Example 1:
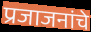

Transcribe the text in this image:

प्रजाजनांचे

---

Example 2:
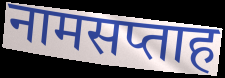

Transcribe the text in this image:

नामसप्ताह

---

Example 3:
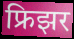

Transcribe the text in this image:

फ्रिझर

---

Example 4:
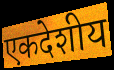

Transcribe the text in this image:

एकदेशीय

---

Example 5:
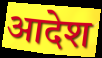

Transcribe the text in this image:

आदेश